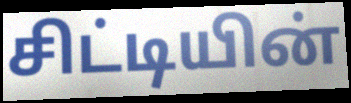
சிட்டியின்